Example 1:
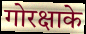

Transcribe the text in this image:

गोरक्षाके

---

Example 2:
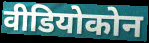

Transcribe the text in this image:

वीडियोकोन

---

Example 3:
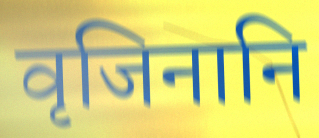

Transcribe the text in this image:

वृजिनानि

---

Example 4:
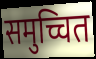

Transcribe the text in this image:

समुच्चित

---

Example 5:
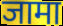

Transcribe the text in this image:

जामा